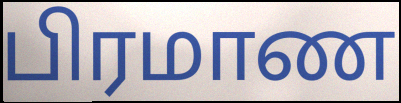
பிரமாண